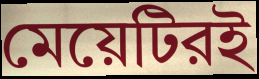
মেয়েটিরই